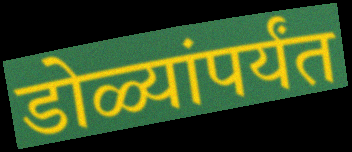
डोळ्यांपर्यंत